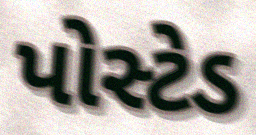
પોસ્ટેડ